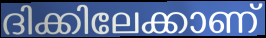
ദിക്കിലേക്കാണ്